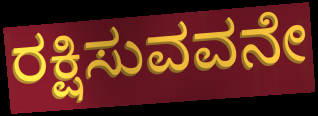
ರಕ್ಷಿಸುವವನೇ